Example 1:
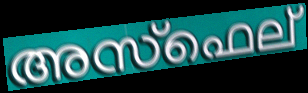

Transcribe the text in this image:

അസ്ഫെല്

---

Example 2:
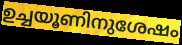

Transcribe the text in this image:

ഉച്ചയൂണിനുശേഷം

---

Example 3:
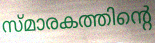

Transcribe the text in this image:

സ്മാരകത്തിന്റെ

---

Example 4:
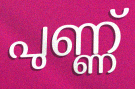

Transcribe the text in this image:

പുണ്ണ്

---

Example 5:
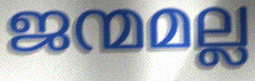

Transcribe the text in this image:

ജന്മമല്ല